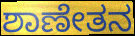
ಶಾಣೇತನ